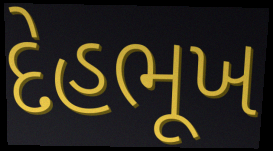
દેહભૂખ